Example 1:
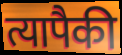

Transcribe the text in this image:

त्यापैकी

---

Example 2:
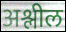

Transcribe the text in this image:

अश्लील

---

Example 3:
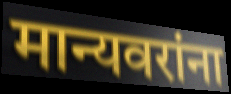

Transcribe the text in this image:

मान्यवरांना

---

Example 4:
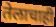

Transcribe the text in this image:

तेलाचाही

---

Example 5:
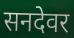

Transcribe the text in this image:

सनदेवर